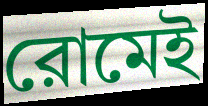
রোমেই